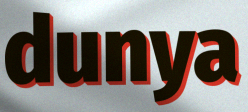
dunya